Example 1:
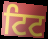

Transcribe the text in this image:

ਟਿਟ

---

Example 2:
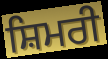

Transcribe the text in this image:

ਸ਼ਿਮਰੀ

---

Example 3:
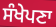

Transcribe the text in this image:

ਸੰਖੇਪਣਾ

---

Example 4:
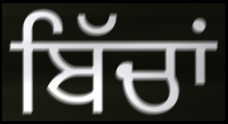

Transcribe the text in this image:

ਬਿੱਚਾਂ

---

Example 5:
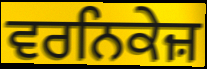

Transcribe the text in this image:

ਵਰਨਿਕੇਜ਼